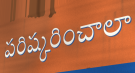
పరిష్కరించాలా